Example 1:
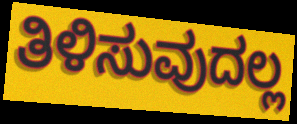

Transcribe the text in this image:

ತಿಳಿಸುವುದಲ್ಲ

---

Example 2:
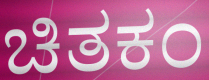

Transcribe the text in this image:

ಚಿತಕಂ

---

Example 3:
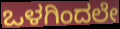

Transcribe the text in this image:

ಒಳಗಿಂದಲೇ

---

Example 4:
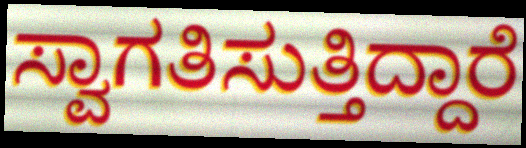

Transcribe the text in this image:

ಸ್ವಾಗತಿಸುತ್ತಿದ್ದಾರೆ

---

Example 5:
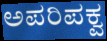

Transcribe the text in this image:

ಅಪರಿಪಕ್ವ